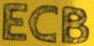
ECB